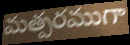
మత్పరముగా